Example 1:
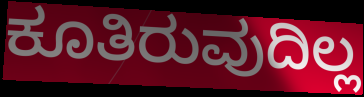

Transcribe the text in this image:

ಕೂತಿರುವುದಿಲ್ಲ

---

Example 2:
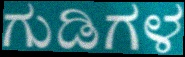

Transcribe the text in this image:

ಗುಡಿಗಳ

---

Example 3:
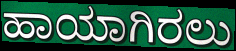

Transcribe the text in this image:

ಹಾಯಾಗಿರಲು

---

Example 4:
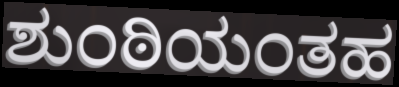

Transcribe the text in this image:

ಶುಂಠಿಯಂತಹ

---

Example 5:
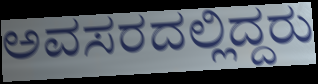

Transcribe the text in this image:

ಅವಸರದಲ್ಲಿದ್ದರು